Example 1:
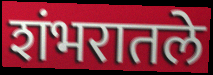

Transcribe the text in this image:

शंभरातले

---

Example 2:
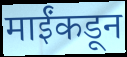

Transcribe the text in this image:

माईंकडून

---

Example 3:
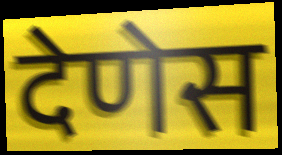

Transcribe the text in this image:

देणेस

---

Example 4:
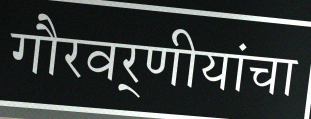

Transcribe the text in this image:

गौरवर्णीयांचा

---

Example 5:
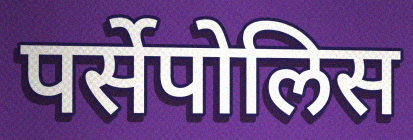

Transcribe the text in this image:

पर्सेपोलिस